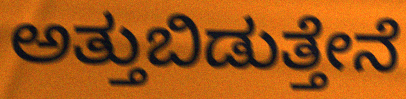
ಅತ್ತುಬಿಡುತ್ತೇನೆ